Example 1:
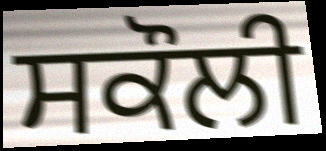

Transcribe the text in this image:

ਸਕੌਲੀ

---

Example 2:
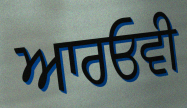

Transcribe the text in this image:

ਆਰਓਵੀ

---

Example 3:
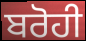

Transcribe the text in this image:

ਬਰੋਹੀ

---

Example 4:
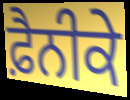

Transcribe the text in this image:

ਫ਼ੈਨੀਕੇ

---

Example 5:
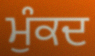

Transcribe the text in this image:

ਮੁੰਕਦ